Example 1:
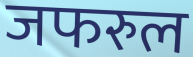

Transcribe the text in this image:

जफरुल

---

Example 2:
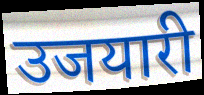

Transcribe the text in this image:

उजयारी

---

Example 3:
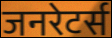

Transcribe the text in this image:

जनरेटर्स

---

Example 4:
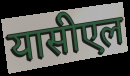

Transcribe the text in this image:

यासीएल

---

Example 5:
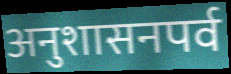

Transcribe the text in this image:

अनुशासनपर्व